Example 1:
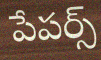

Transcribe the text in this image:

పేపర్స్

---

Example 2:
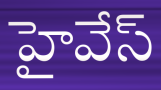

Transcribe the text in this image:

హైవేస్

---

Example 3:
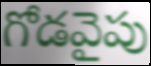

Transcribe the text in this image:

గోడవైపు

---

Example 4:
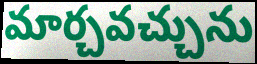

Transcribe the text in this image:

మార్చవచ్చును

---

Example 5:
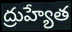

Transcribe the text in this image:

ద్రుహ్యేత